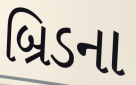
બ્રિડના